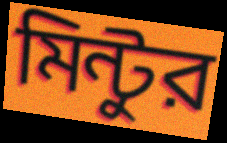
মিন্টুর